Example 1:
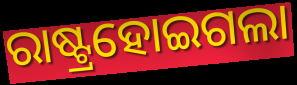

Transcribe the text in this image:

ରାଷ୍ଟ୍ରହୋଇଗଲା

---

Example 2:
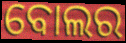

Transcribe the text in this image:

ବୋଲର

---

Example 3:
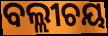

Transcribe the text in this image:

ବଲ୍ଲୀଚୟ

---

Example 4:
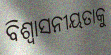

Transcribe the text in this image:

ବିଶ୍ୱାସନୀୟତାକୁ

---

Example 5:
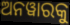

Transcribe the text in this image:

ଅନୱାରକୁ